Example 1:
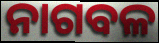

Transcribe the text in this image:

ନାଗବଳ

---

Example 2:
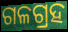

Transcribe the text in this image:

ଗଳଗ୍ରହ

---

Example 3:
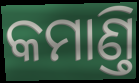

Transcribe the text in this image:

କମାଣ୍ତି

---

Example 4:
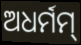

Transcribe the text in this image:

ଅଧର୍ମମ୍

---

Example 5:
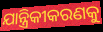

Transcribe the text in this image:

ଯାନ୍ତ୍ରିକୀକରଣକୁ